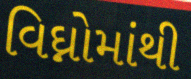
વિઘ્નોમાંથી